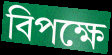
বিপক্ষে